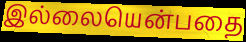
இல்லையென்பதை